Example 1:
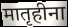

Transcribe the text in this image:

मातृहीना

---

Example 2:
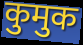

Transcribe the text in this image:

कुमुक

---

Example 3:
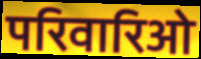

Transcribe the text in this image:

परिवारिओ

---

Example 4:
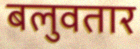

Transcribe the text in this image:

बलुवतार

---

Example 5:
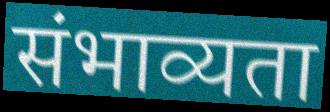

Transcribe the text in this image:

संभाव्यता